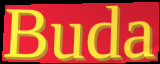
Buda